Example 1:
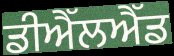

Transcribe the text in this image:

ਡੀਐੱਲਐੱਡ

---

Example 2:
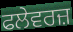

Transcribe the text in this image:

ਫਲੇਵਰਜ਼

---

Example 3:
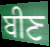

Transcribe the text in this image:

ਬੀਣ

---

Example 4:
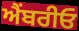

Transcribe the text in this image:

ਐਂਬਰੀਓ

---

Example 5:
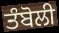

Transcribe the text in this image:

ਤੰਬੋਲੀ